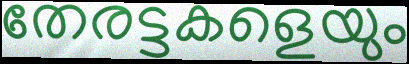
തേരട്ടകളെയും